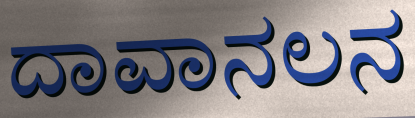
ದಾವಾನಲನ